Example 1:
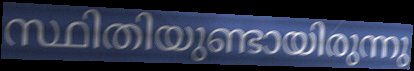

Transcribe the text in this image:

സ്ഥിതിയുണ്ടായിരുന്നു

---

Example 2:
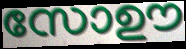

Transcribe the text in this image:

സോഊ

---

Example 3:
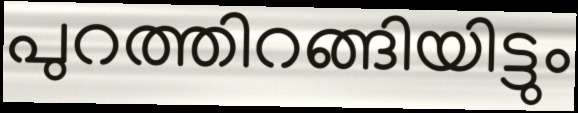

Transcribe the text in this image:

പുറത്തിറങ്ങിയിട്ടും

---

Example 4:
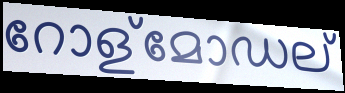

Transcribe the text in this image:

റോള്മോഡല്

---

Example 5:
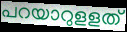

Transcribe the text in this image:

പറയാറുളളത്